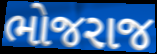
ભોજરાજ